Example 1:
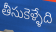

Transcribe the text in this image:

తీసుకెళ్ళేది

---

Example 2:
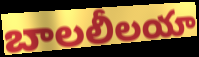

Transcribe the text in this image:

బాలలీలయా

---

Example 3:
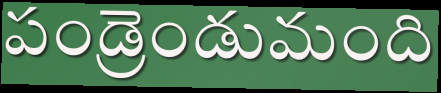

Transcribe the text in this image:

పండ్రెండుమంది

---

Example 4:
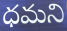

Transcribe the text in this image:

ధమని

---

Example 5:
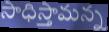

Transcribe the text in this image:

సాధిస్తామన్న